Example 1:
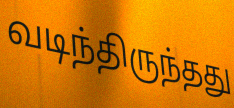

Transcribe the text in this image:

வடிந்திருந்தது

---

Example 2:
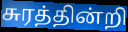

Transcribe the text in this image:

சுரத்தின்றி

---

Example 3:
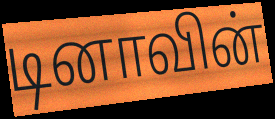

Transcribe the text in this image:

டினாவின்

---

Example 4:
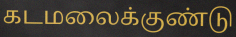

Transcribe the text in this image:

கடமலைக்குண்டு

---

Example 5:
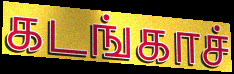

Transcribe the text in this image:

கடங்காச்